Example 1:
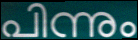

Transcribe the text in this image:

പിന്നും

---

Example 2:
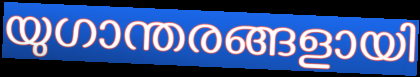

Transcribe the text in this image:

യുഗാന്തരങ്ങളായി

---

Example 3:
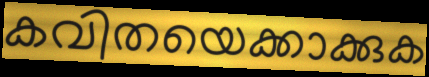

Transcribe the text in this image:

കവിതയെക്കാക്കുക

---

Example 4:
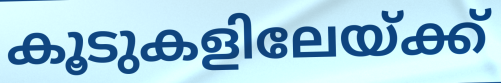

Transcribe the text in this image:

കൂടുകളിലേയ്ക്ക്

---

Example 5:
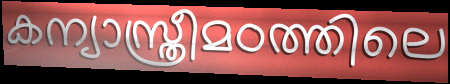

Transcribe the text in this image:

കന്യാസ്ത്രീമഠത്തിലെ